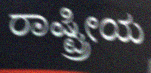
ರಾಷ್ಟ್ರೀಯ